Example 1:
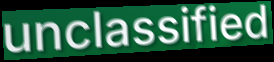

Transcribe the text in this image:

unclassified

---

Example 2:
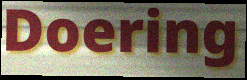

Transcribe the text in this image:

Doering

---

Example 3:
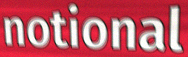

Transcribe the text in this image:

notional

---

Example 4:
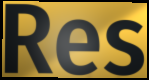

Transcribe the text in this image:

Res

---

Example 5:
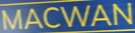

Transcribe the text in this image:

MACWAN